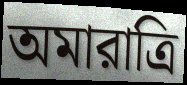
অমারাত্রি